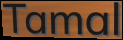
Tamal